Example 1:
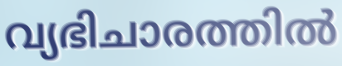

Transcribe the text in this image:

വ്യഭിചാരത്തിൽ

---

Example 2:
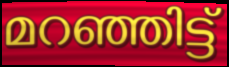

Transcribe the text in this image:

മറഞ്ഞിട്ട്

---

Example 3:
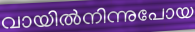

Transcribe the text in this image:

വായിൽനിന്നുപോയ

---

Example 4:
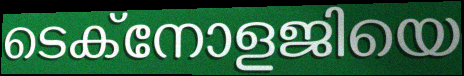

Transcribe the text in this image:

ടെക്‌നോളജിയെ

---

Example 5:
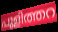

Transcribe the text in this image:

പുളിത്തറ